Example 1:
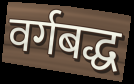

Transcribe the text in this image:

वर्गबद्ध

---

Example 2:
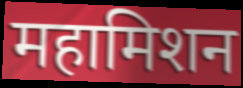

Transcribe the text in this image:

महामिशन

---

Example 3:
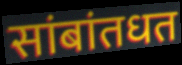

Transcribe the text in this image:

सांबांतधत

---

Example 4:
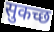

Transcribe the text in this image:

सुकच्छ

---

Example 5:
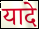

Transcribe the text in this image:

यादे